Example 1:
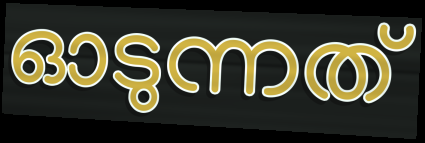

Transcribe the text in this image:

ഓടുന്നത്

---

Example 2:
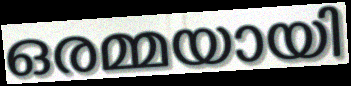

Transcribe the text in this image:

ഒരമ്മയായി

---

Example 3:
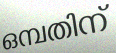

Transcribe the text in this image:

ഒമ്പതിന്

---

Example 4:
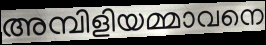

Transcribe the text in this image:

അമ്പിളിയമ്മാവനെ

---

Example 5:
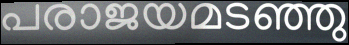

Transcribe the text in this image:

പരാജയമടഞ്ഞു